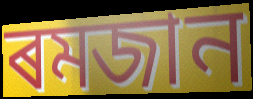
ৰমজান